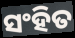
ସଂହିତ